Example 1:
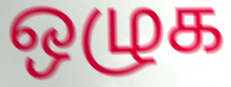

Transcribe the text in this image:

ஒழுக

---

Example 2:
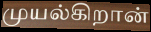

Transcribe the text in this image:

முயல்கிறான்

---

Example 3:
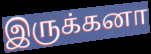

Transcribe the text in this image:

இருக்கனா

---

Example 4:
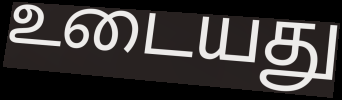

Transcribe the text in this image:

உடையது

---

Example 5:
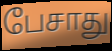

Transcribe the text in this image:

பேசாது